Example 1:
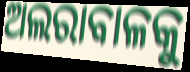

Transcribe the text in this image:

ଅଲରାବାଳକୁ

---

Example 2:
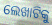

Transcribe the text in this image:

ଲେଖାଟିକୁ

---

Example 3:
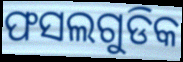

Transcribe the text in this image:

ଫସଲଗୁଡିକ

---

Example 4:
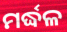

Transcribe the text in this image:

ମର୍ଦ୍ଧଳ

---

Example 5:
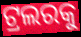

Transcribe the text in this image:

ଟ୍ରଲରକୁ